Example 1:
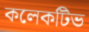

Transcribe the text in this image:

কলেকটিভ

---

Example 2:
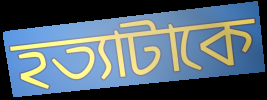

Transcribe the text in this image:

হত্যাটাকে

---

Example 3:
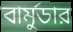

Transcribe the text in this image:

বার্মুডার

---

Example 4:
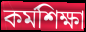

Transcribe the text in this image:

কর্মশিক্ষা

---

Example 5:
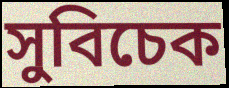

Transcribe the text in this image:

সুবিচেক